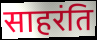
साहरंति